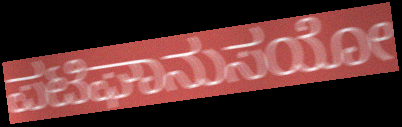
ಪಟಿಘಾನುಸಯೋ